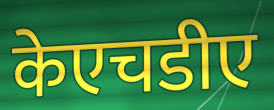
केएचडीए